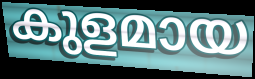
കുളമായ